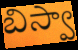
బిస్వా